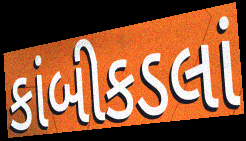
કાંબીકડલાં